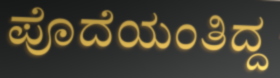
ಪೊದೆಯಂತಿದ್ದ